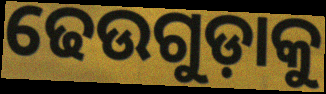
ଢେଉଗୁଡ଼ାକୁ